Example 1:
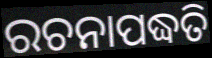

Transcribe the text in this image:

ରଚନାପଦ୍ଧତି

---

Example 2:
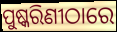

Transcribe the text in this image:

ପୁଷ୍କରିଣୀଠାରେ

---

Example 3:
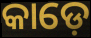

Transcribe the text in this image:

କାଡ଼େ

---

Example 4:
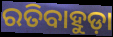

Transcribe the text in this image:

ରତିବାହୁଡ଼ା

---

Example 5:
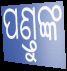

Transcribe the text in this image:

ପଣ୍ତୁଙ୍କ